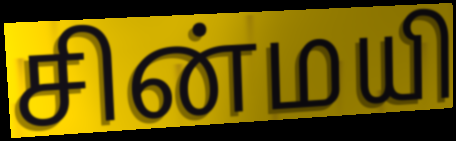
சின்மயி